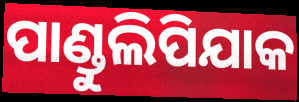
ପାଣ୍ଡୁଲିପିଯାକ